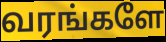
வரங்களே